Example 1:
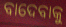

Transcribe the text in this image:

ବାଦେବାକୁ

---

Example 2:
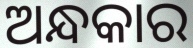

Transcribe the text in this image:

ଅନ୍ଧକାର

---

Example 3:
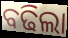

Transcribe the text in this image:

ବଢିଲା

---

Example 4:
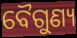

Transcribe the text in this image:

ବୈଗୁଣ୍ୟ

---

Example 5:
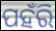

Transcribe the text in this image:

ପହଁରି